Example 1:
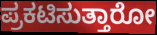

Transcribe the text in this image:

ಪ್ರಕಟಿಸುತ್ತಾರೋ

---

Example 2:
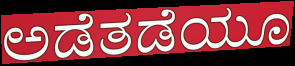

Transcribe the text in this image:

ಅಡೆತಡೆಯೂ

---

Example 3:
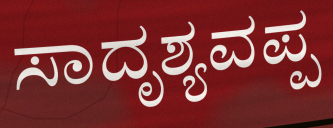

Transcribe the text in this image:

ಸಾದೃಶ್ಯವಪ್ಪ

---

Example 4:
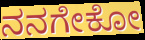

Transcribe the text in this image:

ನನಗೇಕೋ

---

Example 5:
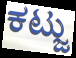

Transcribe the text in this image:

ಕಟ್ಜು